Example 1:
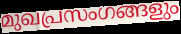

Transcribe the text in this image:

മുഖപ്രസംഗങ്ങളും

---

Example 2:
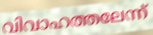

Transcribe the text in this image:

വിവാഹത്തലേന്ന്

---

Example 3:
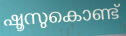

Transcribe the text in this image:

ഷൂസുകൊണ്ട്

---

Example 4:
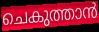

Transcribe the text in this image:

ചെകുത്താൻ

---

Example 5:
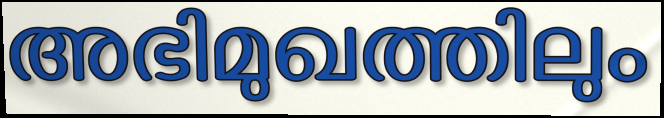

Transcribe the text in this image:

അഭിമുഖത്തിലും